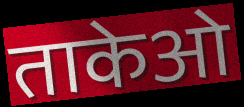
ताकेओ